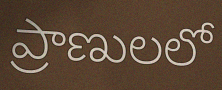
ప్రాణులలో